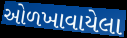
ઓળખાવાયેલા